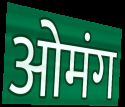
ओमंग